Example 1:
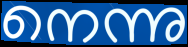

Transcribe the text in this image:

നെന്നു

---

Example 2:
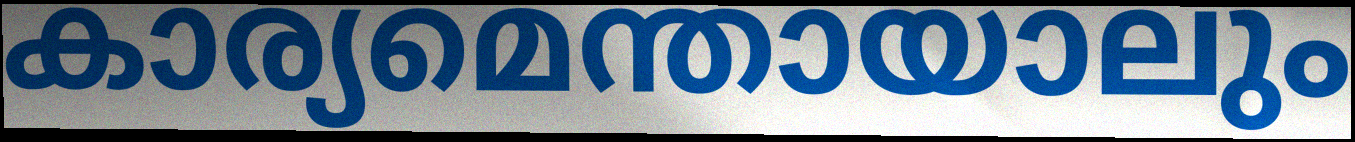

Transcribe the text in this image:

കാര്യമെന്തായാലും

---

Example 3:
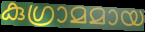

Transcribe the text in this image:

കുഗ്രാമമായ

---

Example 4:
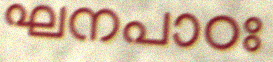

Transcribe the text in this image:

ഘനപാഠഃ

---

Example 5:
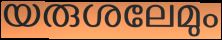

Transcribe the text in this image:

യരുശലേമും